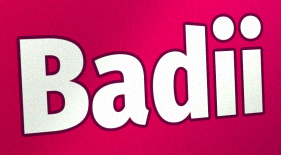
Badii